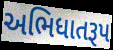
અભિધાતરૂપ